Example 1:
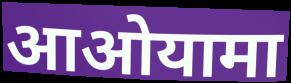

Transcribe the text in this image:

आओयामा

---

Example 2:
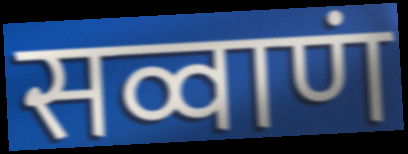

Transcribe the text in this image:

सव्वाणं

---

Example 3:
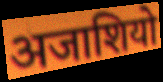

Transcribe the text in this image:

अजाशियो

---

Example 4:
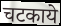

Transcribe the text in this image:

चटकाये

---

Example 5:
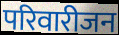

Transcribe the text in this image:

परिवारीजन